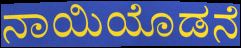
ನಾಯಿಯೊಡನೆ